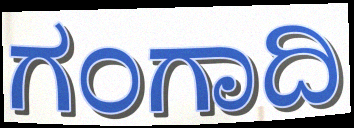
ಗಂಗಾದಿ